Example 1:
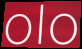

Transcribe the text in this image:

olo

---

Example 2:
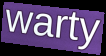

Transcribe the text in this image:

warty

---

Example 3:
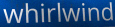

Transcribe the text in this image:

whirlwind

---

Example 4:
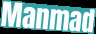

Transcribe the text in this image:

Manmad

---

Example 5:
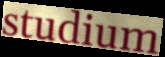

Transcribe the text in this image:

studium